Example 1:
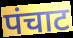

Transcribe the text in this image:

पंचाट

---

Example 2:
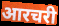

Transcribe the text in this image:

आरचरी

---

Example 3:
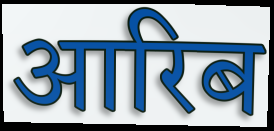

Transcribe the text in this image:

आरिब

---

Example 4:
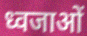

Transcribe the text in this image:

ध्वजाओं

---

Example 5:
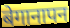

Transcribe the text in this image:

बेगानापन